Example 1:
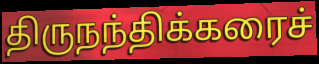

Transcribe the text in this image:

திருநந்திக்கரைச்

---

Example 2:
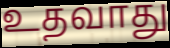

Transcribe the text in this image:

உதவாது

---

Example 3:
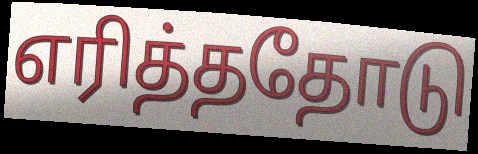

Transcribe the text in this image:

எரித்ததோடு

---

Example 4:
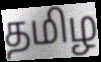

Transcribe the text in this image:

தமிழ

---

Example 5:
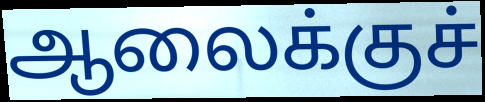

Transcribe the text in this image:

ஆலைக்குச்